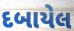
દબાયેલ